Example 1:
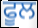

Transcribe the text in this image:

ਫੂਲ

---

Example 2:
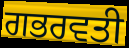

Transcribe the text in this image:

ਗਭਰਵਤੀ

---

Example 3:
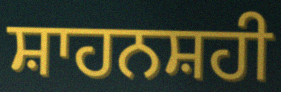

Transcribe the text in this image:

ਸ਼ਾਹਨਸ਼ਹੀ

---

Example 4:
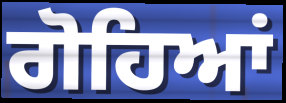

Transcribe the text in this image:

ਗੋਹਿਆਂ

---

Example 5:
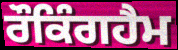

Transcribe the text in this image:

ਰੌਕਿੰਗਹੈਮ